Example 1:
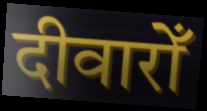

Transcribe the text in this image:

दीवारोँ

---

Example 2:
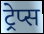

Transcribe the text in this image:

ट्रेप्स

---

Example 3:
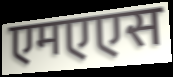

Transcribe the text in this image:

एमएएस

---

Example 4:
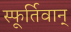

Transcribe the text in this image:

स्फूर्तिवान्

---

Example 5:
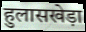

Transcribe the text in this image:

हुलासखेड़ा